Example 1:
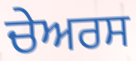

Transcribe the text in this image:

ਚੇਅਰਸ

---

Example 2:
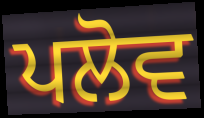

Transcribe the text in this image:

ਪਲੋਵ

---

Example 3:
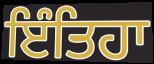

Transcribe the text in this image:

ਇੰਤਿਹਾ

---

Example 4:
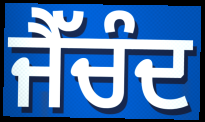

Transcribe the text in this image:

ਜੈੱਚੰਦ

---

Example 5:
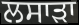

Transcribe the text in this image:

ਲਸਾੜਾ